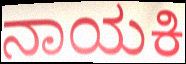
ನಾಯಕಿ